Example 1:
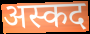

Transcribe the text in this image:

अस्कद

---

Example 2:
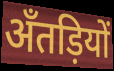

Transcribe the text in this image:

अँतड़ियों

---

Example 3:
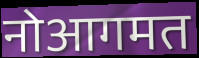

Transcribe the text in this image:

नोआगमत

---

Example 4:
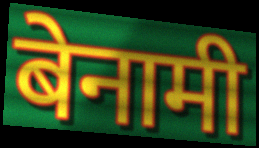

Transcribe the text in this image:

बेनामी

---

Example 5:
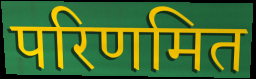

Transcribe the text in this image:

परिणमित